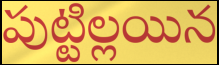
పుట్టిల్లయిన